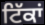
ਟਿੱਕਾਂ